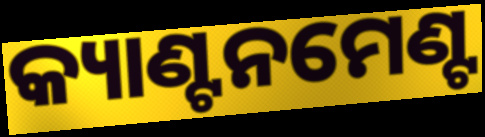
କ୍ୟାଣ୍ଟନମେଣ୍ଟ